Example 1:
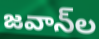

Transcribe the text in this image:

జవాన్‌ల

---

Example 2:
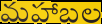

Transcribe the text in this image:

మహాబల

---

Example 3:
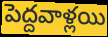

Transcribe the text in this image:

పెద్దవాళ్లయి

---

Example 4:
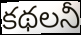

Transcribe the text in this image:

కథలనీ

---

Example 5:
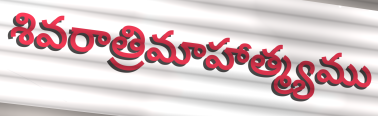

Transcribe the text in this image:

శివరాత్రిమాహాత్మ్యము